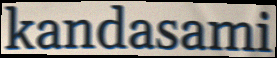
kandasami